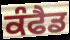
ਕੰਫੈਡ